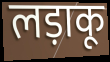
लड़ाकू